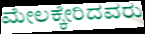
ಮೇಲಕ್ಕೇರಿದವರು